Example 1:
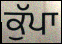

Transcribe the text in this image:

ਕੁੱਪਾ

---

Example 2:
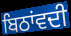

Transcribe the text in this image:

ਬਿਠਾਂਵਦੀ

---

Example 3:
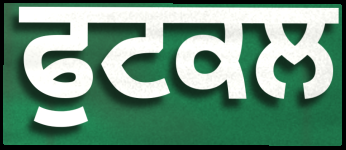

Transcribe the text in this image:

ਫੁਟਕਲ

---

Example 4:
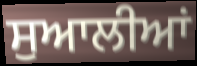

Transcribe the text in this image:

ਸੁਆਲੀਆਂ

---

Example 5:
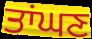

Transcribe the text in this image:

ਤਾਂਘਣ